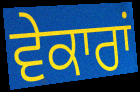
ਵੇਕਾਰਾਂ